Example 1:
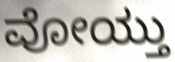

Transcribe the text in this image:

ವೋಯ್ತು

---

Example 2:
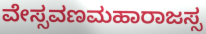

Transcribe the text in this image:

ವೇಸ್ಸವಣಮಹಾರಾಜಸ್ಸ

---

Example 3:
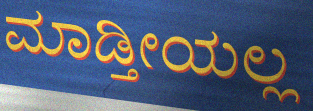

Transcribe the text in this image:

ಮಾಡ್ತೀಯಲ್ಲ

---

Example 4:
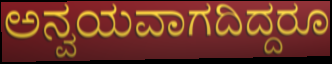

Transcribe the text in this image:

ಅನ್ವಯವಾಗದಿದ್ದರೂ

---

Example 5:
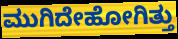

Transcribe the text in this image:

ಮುಗಿದೇಹೋಗಿತ್ತು